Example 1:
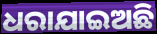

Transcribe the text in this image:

ଧରାଯାଇଅଛି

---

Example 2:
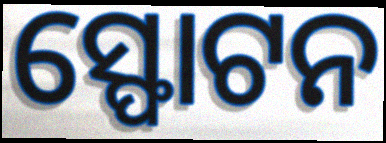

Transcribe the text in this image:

ସ୍ଫୋଟନ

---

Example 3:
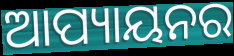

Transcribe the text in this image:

ଆପ୍ୟାୟନର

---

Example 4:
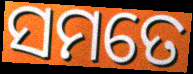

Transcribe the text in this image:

ସମତେ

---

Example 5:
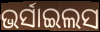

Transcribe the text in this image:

ଭର୍ସାଇଲସ